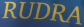
RUDRA